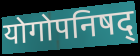
योगोपनिषद्